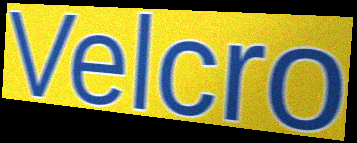
Velcro